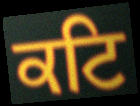
ਕਟਿ